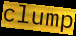
clump